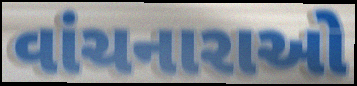
વાંચનારાઓ